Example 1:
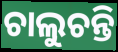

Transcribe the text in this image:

ଚାଲୁଚନ୍ତି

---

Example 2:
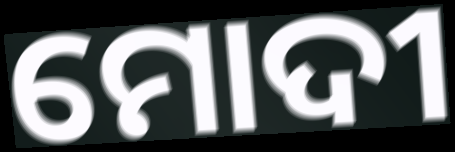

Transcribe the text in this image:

ମୋଦୀ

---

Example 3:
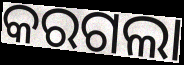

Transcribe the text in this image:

କରଗଲା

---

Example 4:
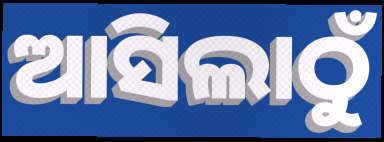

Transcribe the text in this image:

ଆସିଲାଠୁଁ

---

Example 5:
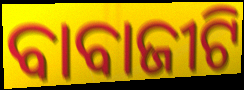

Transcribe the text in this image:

ବାବାଜୀଟି